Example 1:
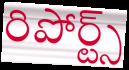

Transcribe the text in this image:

రిపోర్ట్స్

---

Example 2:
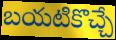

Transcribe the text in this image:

బయటికొచ్చే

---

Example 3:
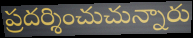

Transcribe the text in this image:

ప్రదర్శించుచున్నారు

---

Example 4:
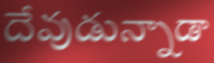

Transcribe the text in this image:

దేవుడున్నాడా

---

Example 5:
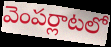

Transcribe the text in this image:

వెంపర్లాటలో